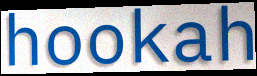
hookah